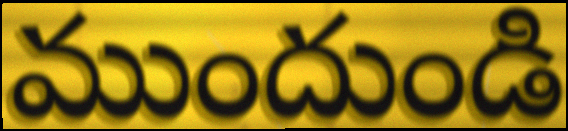
ముందుండి